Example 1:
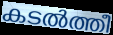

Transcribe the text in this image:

കടൽത്തീ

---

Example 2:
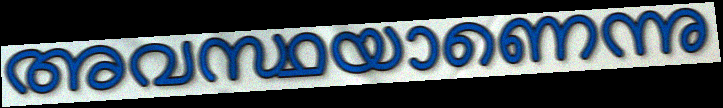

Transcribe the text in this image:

അവസ്ഥയാണെന്നു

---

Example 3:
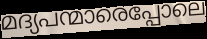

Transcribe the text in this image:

മദ്യപന്മാരെപ്പോലെ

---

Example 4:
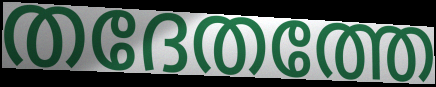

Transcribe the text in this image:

തദേതത്തേ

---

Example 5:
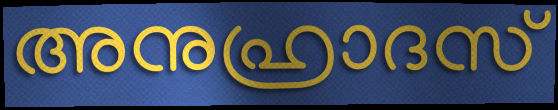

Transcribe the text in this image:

അനുഹ്രാദസ്